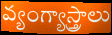
వ్యంగ్యాస్త్రాలు